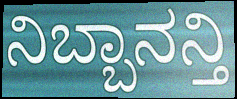
ನಿಬ್ಬಾನನ್ತಿ